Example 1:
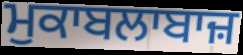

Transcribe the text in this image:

ਮੁਕਾਬਲਾਬਾਜ਼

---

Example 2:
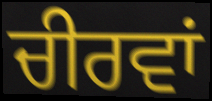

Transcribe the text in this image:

ਚੀਰਵਾਂ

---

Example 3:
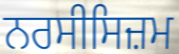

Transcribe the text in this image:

ਨਰਸੀਸਿਜ਼ਮ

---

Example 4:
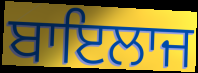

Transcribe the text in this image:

ਬਾਇਲਾਜ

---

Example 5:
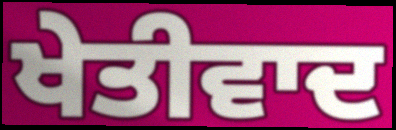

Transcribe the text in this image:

ਖੇਤੀਵਾਦ